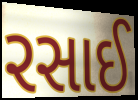
રસાઈ